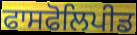
ਫਾਸਫੋਲਿਪੀਡ